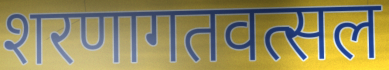
शरणागतवत्सल